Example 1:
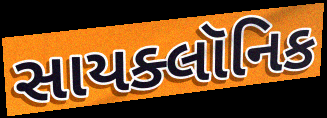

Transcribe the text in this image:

સાયક્લૉનિક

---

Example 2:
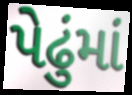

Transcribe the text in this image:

પેઢુંમાં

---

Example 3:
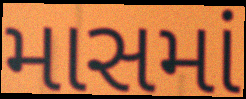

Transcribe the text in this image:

માસમાં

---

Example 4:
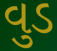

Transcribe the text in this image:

વુડ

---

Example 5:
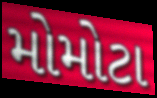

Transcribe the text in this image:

મોમોટા